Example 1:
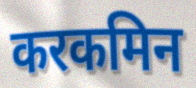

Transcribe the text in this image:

करकमिन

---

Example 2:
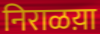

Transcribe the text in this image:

निराळय़ा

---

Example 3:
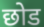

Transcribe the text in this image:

छोड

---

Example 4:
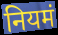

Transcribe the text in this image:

नियमं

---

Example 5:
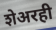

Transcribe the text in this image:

शेअरही